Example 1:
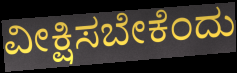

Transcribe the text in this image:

ವೀಕ್ಷಿಸಬೇಕೆಂದು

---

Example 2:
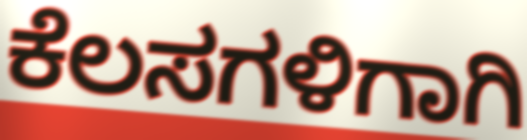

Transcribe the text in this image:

ಕೆಲಸಗಳಿಗಾಗಿ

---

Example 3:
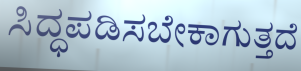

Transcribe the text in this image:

ಸಿದ್ಧಪಡಿಸಬೇಕಾಗುತ್ತದೆ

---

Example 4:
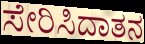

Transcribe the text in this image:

ಸೇರಿಸಿದಾತನ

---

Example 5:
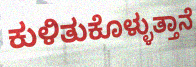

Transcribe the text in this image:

ಕುಳಿತುಕೊಳ್ಳುತ್ತಾನೆ